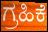
ಗ್ರಹಿಕೆ